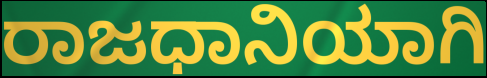
ರಾಜಧಾನಿಯಾಗಿ